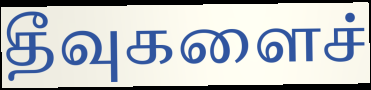
தீவுகளைச்